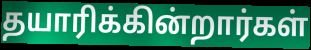
தயாரிக்கின்றார்கள்